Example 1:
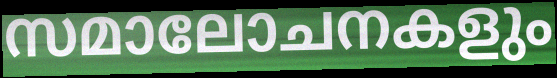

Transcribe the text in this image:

സമാലോചനകളും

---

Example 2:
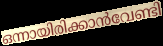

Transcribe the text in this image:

ഒന്നായിരിക്കാൻവേണ്ടി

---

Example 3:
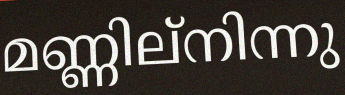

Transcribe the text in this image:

മണ്ണില്നിന്നു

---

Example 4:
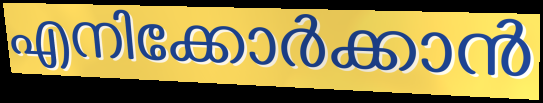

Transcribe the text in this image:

എനിക്കോർക്കാൻ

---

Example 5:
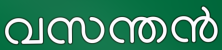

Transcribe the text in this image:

വസന്തൻ